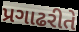
પ્રગાઢરીતે